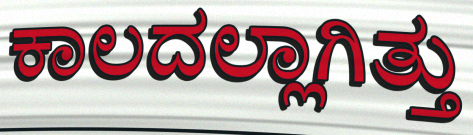
ಕಾಲದಲ್ಲಾಗಿತ್ತು